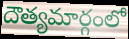
దౌత్యమార్గంలో